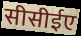
सीसीईए